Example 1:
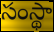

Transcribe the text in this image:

సంస్థా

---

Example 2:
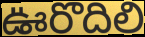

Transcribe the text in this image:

ఊరొదిలి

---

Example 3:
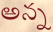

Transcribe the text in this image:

అన్న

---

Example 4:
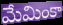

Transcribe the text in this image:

మేమింకా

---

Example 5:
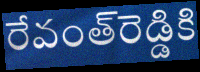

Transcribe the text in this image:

రేవంత్‌రెడ్డికి